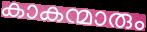
കാകന്മാരും